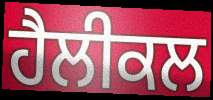
ਹੈਲੀਕਲ